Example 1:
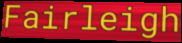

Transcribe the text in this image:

Fairleigh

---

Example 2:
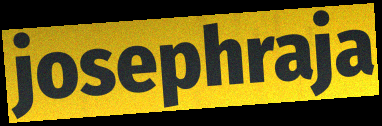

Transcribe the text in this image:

josephraja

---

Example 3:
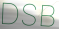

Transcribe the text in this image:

DSB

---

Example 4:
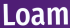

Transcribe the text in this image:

Loam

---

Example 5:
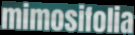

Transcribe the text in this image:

mimosifolia